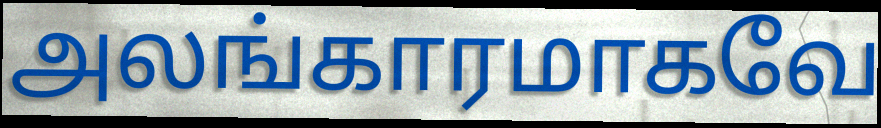
அலங்காரமாகவே